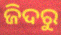
ଜିଦରୁ